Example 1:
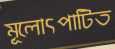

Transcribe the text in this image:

মূলোৎপাটিত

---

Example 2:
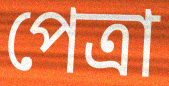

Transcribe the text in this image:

পেত্রা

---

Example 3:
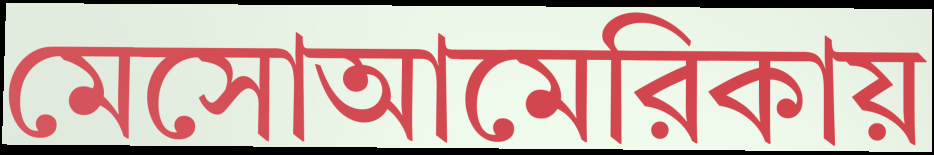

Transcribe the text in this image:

মেসোআমেরিকায়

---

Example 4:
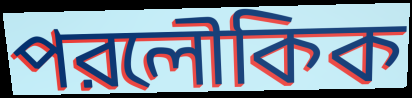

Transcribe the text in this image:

পরলৌকিক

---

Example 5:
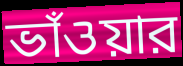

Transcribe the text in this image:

ভাঁওয়ার